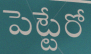
పెట్టేరో